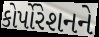
કોર્પોરેશનને